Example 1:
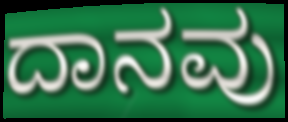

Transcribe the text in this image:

ದಾನವು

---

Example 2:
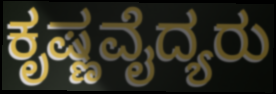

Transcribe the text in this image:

ಕೃಷ್ಣವೈದ್ಯರು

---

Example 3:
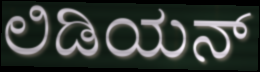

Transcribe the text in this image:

ಲಿಡಿಯನ್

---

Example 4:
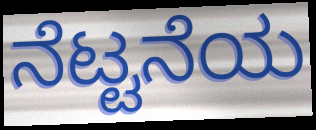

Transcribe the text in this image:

ನೆಟ್ಟನೆಯ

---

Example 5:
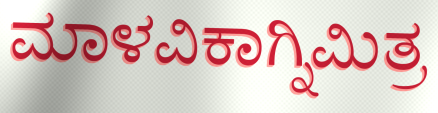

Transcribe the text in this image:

ಮಾಳವಿಕಾಗ್ನಿಮಿತ್ರ